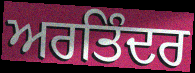
ਅਰਤਿੰਦਰ